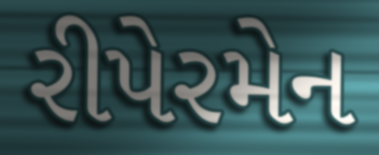
રીપેરમેન